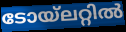
ടോയ്ലറ്റിൽ